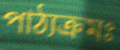
পাঠ্যক্ৰমঃ